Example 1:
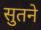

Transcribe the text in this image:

सुतने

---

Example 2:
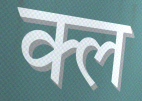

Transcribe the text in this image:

क्ल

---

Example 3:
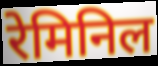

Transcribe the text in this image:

रेमिनिल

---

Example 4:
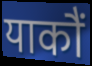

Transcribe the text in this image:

याकौं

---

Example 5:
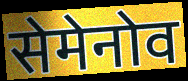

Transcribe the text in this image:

सेमेनोव